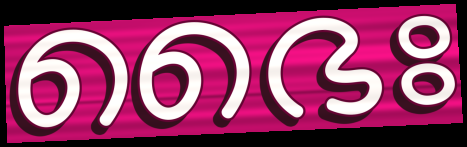
ഭൈഃ